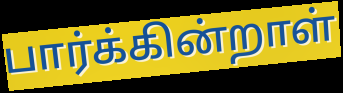
பார்க்கின்றாள்